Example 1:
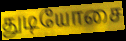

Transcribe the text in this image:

துடியோசை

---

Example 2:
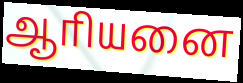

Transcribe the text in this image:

ஆரியனை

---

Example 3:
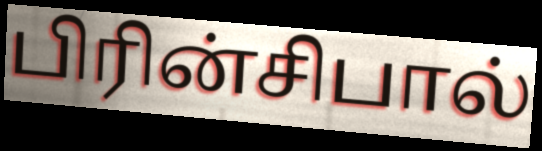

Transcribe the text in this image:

பிரின்சிபால்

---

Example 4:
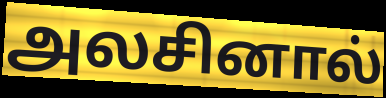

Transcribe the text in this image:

அலசினால்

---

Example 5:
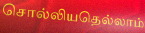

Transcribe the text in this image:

சொல்லியதெல்லாம்